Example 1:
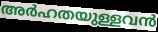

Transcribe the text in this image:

അർഹതയുള്ളവൻ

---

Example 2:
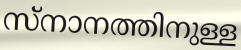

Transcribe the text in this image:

സ്നാനത്തിനുള്ള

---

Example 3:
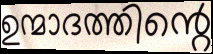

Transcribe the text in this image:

ഉന്മാദത്തിന്റെ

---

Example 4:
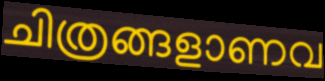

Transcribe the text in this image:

ചിത്രങ്ങളാണവ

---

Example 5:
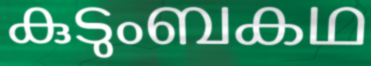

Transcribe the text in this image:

കുടുംബകഥ